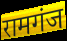
रामगंज